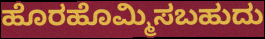
ಹೊರಹೊಮ್ಮಿಸಬಹುದು